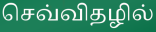
செவ்விதழில்